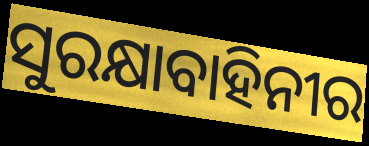
ସୁରକ୍ଷାବାହିନୀର